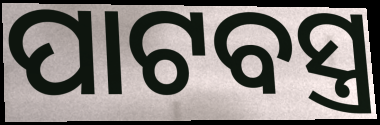
ପାଟବସ୍ତ୍ର